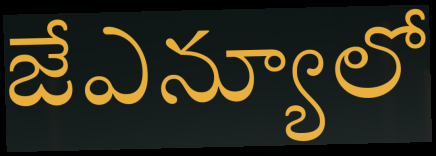
జేఎన్యూలో